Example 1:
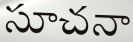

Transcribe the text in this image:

సూచనా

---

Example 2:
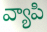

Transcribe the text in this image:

వ్యాపి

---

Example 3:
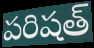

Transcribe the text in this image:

పరిషత్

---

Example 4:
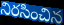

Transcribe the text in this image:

నిరసించిన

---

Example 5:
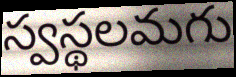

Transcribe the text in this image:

స్వస్థలమగు